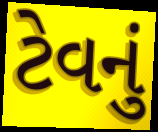
ટેવનું